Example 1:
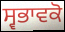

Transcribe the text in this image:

ਸ੍ਵਭਾਵਕੋ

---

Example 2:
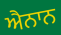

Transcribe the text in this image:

ਐਨਾਨ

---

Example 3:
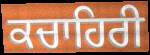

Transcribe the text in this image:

ਕਚਾਹਿਰੀ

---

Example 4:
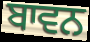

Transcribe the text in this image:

ਬਾਵਨ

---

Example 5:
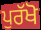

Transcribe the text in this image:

ਪੁਰੱਖੋ